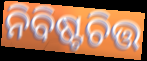
ନିବିଷ୍ଟଚିତ୍ତ